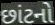
છાંટનો